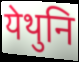
येथुनि